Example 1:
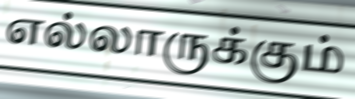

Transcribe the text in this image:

எல்லாருக்கும்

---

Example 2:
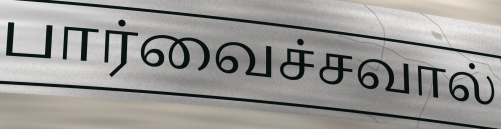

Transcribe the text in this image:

பார்வைச்சவால்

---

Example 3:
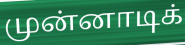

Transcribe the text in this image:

முன்னாடிக்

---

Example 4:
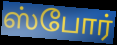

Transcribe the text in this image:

ஸ்போர்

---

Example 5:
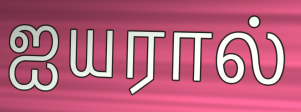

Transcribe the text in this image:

ஐயரால்